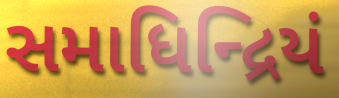
સમાધિન્દ્રિયં